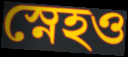
স্নেহও